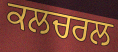
ਕਲਚਰਲ